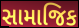
સામાજિક